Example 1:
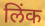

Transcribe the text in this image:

लिंक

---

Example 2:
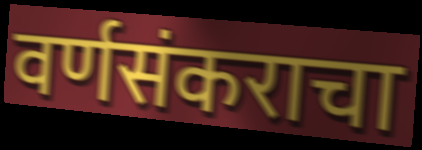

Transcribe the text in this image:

वर्णसंकराचा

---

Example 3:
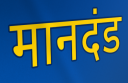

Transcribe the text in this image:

मानदंड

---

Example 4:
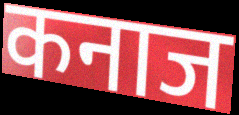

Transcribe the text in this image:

कनाज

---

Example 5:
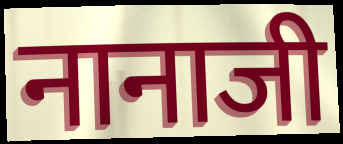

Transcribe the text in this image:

नानाजी